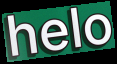
helo